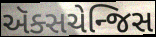
ઍક્સચેન્જિસ